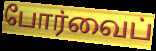
போர்வைப்